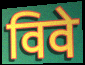
विवे